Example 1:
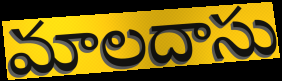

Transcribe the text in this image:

మాలదాసు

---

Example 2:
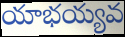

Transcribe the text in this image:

యాభయ్యవ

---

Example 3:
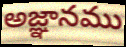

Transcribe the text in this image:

అజ్ఞానము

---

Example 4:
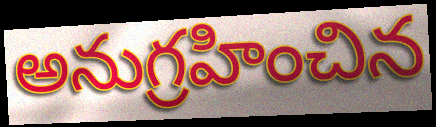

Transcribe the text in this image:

అనుగ్రహించిన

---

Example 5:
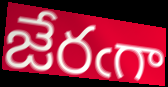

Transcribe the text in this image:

జేరఁగా